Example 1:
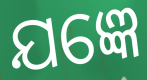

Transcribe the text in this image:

ଯଜ୍ଞେ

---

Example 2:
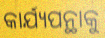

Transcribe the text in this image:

କାର୍ଯ୍ୟପନ୍ଥାକୁ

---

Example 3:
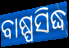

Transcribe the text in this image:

ବାଷ୍ପସିଦ୍ଧ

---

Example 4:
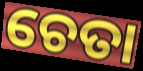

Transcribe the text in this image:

ଚେତା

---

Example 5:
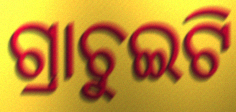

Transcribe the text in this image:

ଗ୍ରାଚୁଇଟି